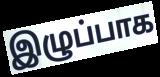
இழுப்பாக